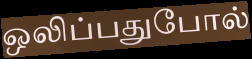
ஒலிப்பதுபோல்